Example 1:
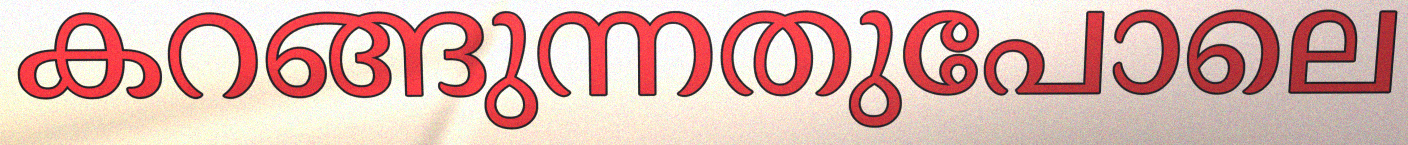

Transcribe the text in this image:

കറങ്ങുന്നതുപോലെ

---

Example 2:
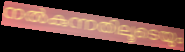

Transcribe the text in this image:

നൽകുന്നതിലൂടെയും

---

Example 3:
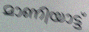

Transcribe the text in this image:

മാണിയാട്ട്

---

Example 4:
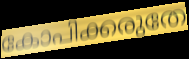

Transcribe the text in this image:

കോപിക്കരുതേ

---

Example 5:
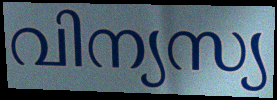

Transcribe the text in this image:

വിന്യസ്യ